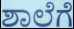
ಶಾಲೆಗೆ